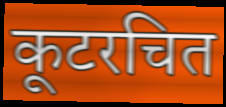
कूटरचित